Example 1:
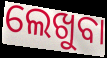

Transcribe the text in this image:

ଲେଖୁବା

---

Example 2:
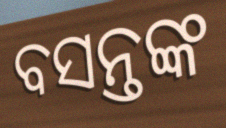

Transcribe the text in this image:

ବସନ୍ତଙ୍କ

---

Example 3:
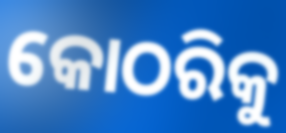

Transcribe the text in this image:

କୋଠରିକୁ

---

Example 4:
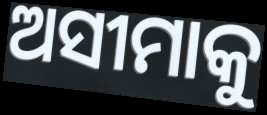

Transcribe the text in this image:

ଅସୀମାକୁ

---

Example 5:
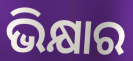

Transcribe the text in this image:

ଭିକ୍ଷାର